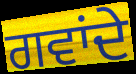
ਗਵਾਂਦੇ